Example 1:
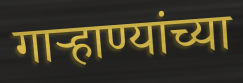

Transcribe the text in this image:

गाऱ्हाण्यांच्या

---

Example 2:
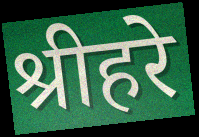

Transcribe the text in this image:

श्रीहरे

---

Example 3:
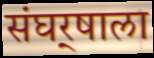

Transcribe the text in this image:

संघर्षाला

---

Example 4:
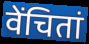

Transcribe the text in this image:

वेंचितां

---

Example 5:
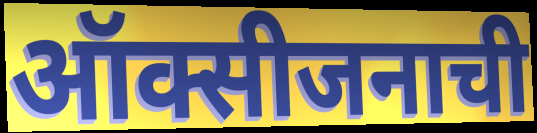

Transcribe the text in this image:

ऑक्सीजनाची